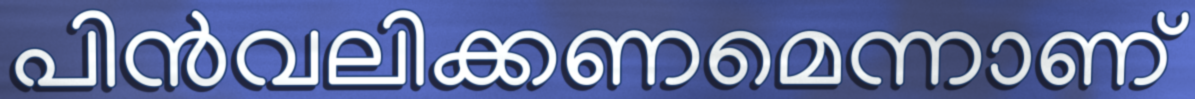
പിൻവലിക്കണമെന്നാണ്